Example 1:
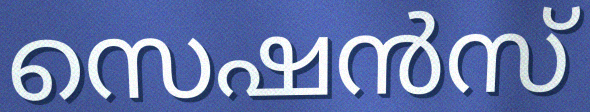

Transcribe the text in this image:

സെഷൻസ്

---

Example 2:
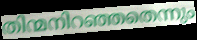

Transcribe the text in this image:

തിന്മനിറഞ്ഞതെന്നും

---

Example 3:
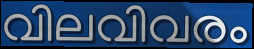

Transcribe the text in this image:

വിലവിവരം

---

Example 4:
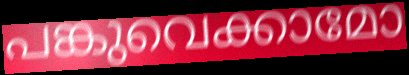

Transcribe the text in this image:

പങ്കുവെക്കാമോ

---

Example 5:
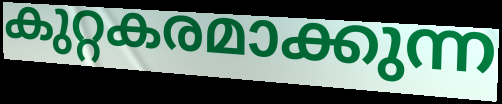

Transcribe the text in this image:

കുറ്റകരമാക്കുന്ന